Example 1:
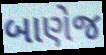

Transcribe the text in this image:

બાણેજ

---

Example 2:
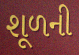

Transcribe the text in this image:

શૂળની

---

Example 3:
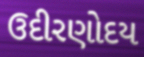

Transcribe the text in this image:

ઉદીરણોદય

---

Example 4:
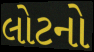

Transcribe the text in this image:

લોટનો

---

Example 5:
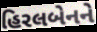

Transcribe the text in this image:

હિરલબેનને